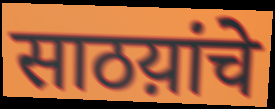
साठय़ांचे